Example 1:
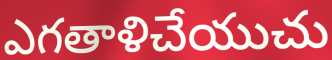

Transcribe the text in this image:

ఎగతాళిచేయుచు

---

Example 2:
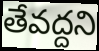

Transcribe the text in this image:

తేవద్దని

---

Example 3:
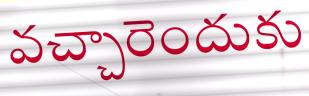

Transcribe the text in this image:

వచ్చారెందుకు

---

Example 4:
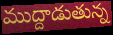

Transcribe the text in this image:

ముద్దాడుతున్న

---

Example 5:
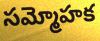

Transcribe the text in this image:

సమ్మోహక